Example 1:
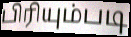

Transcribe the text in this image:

பிரியும்படி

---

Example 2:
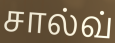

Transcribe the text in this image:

சால்வ்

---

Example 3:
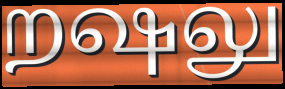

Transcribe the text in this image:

றஷலு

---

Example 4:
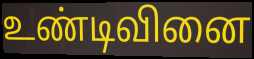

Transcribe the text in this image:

உண்டிவினை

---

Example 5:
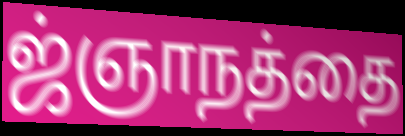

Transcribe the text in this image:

ஜ்ஞாநத்தை